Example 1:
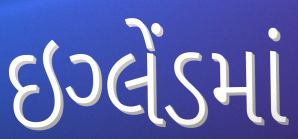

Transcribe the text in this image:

ઇગ્લેંડમાં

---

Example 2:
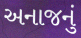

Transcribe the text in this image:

અનાજનું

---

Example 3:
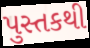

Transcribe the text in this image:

પુસ્તકથી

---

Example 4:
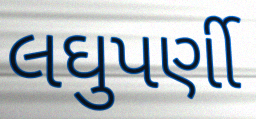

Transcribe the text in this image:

લઘુપર્ણી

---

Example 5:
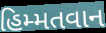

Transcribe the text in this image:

હિમ્મતવાન